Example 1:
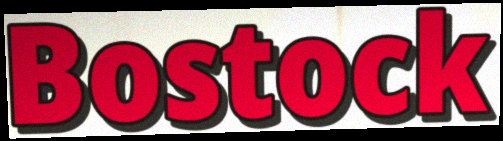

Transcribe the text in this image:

Bostock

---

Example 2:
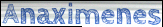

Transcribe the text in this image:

Anaximenes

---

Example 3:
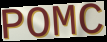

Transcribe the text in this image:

POMC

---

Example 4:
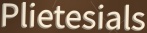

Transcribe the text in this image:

Plietesials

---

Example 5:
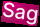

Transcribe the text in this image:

Sag